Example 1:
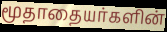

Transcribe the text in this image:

மூதாதையர்களின்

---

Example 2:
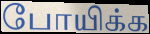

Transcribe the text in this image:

போயிக்க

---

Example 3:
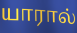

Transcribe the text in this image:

யாரால்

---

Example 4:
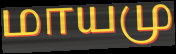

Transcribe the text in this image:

மாயமு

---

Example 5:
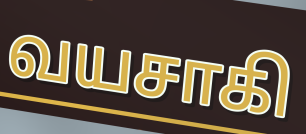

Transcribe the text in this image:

வயசாகி